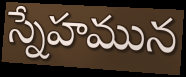
స్నేహమున